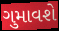
ગુમાવશે